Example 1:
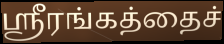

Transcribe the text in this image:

ஸ்ரீரங்கத்தைச்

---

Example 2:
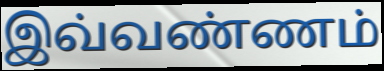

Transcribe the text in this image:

இவ்வண்ணம்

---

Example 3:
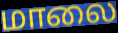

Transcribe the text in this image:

மாலை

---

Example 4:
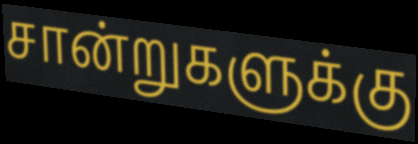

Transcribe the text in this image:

சான்றுகளுக்கு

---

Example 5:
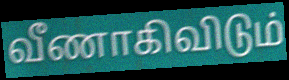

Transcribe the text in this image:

வீணாகிவிடும்